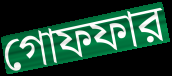
গোফফার